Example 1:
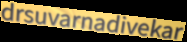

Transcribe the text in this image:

drsuvarnadivekar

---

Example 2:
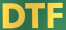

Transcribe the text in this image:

DTF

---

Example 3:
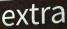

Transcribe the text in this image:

extra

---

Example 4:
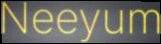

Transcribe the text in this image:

Neeyum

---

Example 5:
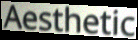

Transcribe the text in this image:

Aesthetic